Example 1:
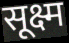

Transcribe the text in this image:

सूक्ष्म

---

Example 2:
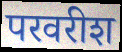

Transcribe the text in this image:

परवरीश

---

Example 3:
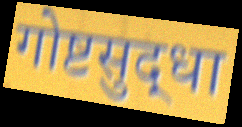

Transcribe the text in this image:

गोष्टसुद्धा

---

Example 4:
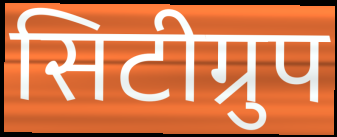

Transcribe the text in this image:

सिटीग्रुप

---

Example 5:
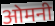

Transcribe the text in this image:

ओमनी